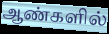
ஆண்களில்